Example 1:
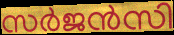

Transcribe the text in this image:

സർജൻസി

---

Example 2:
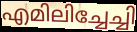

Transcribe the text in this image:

എമിലിച്ചേച്ചി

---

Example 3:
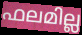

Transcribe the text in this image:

ഫലമില്ല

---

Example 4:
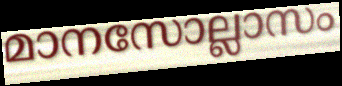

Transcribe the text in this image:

മാനസോല്ലാസം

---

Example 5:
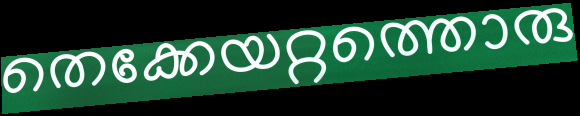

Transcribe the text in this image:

തെക്കേയറ്റത്തൊരു